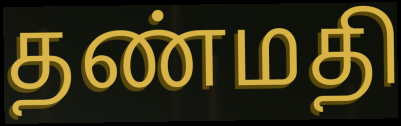
தண்மதி